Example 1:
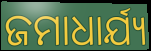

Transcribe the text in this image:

ଜମାଧାର୍ଯ୍ୟ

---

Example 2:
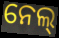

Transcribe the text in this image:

ନେଲ୍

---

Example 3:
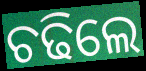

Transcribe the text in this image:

ଚଢିଲେ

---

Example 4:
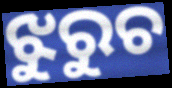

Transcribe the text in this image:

ଝୁରୁଚ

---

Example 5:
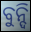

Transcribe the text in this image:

ବୁନ୍ଦି